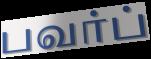
பவர்ப்